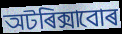
অটৰিক্সাবোৰ